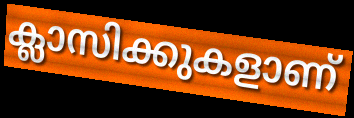
ക്ലാസിക്കുകളാണ്